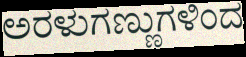
ಅರಳುಗಣ್ಣುಗಳಿಂದ